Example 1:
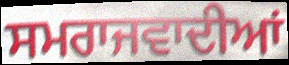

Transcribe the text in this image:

ਸਮਰਾਜਵਾਦੀਆਂ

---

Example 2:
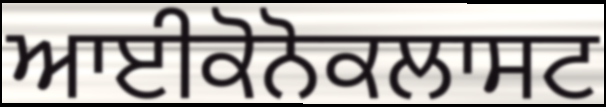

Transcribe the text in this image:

ਆਈਕੋਨੋਕਲਾਸਟ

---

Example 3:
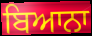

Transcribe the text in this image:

ਬਿਆਨਾ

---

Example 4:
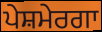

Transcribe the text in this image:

ਪੇਸ਼ਮੇਰਗਾ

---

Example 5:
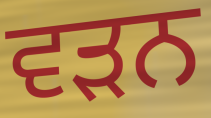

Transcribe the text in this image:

ਵਡ਼ਨ